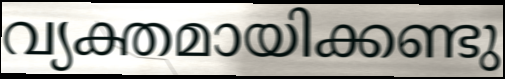
വ്യക്തമായിക്കണ്ടു